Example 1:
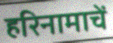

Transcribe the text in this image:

हरिनामाचें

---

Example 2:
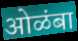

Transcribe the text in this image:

ओळंबा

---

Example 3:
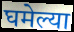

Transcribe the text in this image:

घमेल्या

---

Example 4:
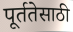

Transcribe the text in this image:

पूर्ततेसाठी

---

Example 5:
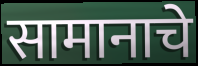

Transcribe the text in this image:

सामानाचे